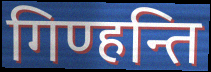
गिण्हन्ति